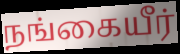
நங்கையீர்